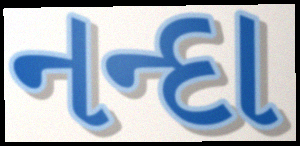
નન્દા